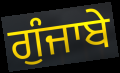
ਗੁੰਜਾਬੇ